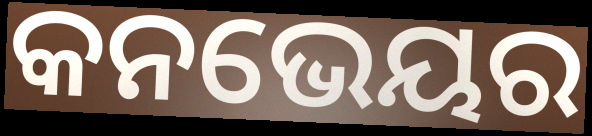
କନଭେୟର